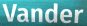
Vander